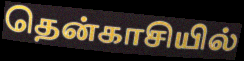
தென்காசியில்